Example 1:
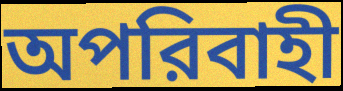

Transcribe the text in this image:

অপরিবাহী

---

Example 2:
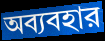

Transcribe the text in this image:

অব্যবহার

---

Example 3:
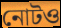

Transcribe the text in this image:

নোটও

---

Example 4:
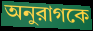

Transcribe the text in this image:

অনুরাগকে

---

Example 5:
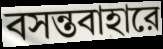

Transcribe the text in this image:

বসন্তবাহারে